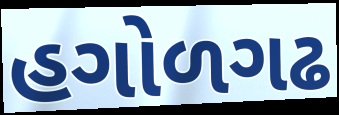
હગોળગઢ